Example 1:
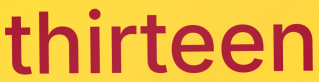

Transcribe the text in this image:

thirteen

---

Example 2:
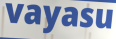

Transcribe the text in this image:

vayasu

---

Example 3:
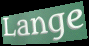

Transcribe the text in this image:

Lange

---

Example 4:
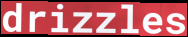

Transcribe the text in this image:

drizzles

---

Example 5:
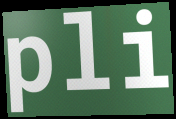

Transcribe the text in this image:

pli